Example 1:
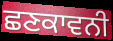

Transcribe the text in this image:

ਛਣਕਾਵਨੀ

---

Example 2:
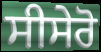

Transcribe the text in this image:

ਸੀਸੇਰੋ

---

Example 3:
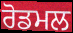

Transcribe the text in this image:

ਰੋਡਮਲ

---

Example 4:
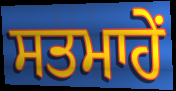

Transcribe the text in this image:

ਸਤਮਾਹੇਂ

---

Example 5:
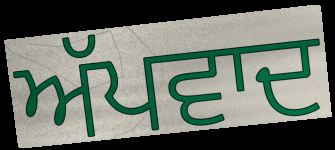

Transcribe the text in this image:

ਅੱਪਵਾਦ